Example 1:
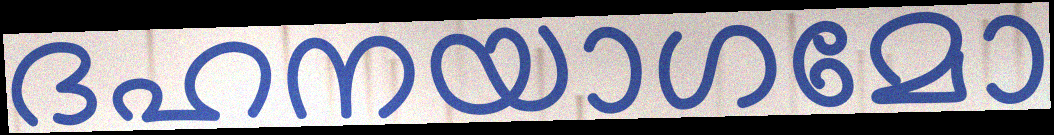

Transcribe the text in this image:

ദഹനയാഗമോ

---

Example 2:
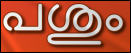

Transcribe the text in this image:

പശും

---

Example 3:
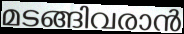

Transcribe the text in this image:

മടങ്ങിവരാൻ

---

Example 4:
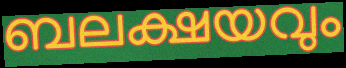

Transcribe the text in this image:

ബലക്ഷയവും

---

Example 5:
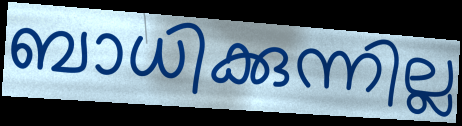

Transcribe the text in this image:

ബാധിക്കുന്നില്ല